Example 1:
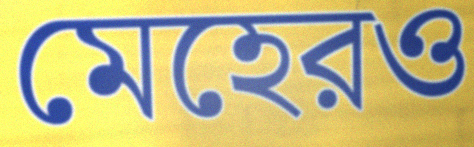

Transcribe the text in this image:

মেহেরও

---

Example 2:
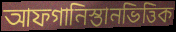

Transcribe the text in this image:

আফগানিস্তানভিত্তিক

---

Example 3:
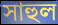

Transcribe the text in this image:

সাহুল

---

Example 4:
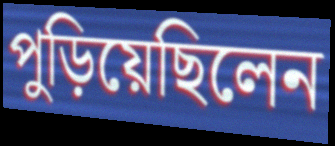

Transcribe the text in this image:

পুড়িয়েছিলেন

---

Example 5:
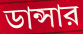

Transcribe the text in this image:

ডান্সার